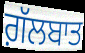
ਗ਼ੱਲਬਾਤ